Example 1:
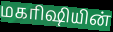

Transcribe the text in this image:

மகரிஷியின்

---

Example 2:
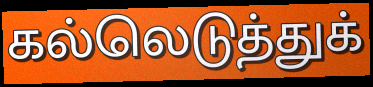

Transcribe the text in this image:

கல்லெடுத்துக்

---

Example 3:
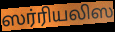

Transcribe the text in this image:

ஸர்ரியலிஸ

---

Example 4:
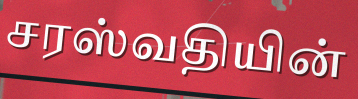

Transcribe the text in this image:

சரஸ்வதியின்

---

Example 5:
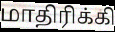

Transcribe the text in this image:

மாதிரிக்கி